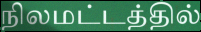
நிலமட்டத்தில்